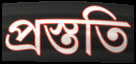
প্রস্ততি